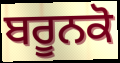
ਬਰੂਨਕੋ